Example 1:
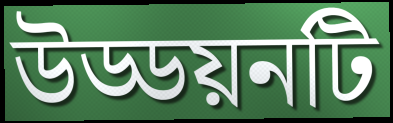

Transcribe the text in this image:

উড্ডয়নটি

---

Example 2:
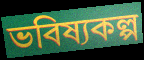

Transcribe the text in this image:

ভবিষ্যকল্প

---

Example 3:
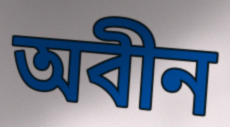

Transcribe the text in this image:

অবীন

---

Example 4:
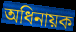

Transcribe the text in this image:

অধিনায়ক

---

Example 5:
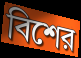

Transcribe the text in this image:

বিশের